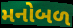
મનોબળ